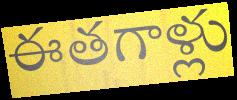
ఈతగాళ్లు